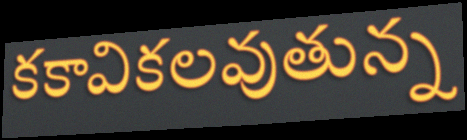
కకావికలవుతున్న